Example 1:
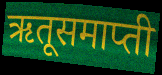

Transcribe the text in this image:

ऋतूसमाप्ती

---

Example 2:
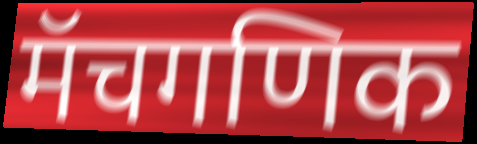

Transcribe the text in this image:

मॅचगणिक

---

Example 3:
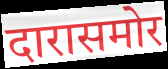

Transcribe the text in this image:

दारासमोर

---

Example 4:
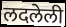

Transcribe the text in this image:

लदलेली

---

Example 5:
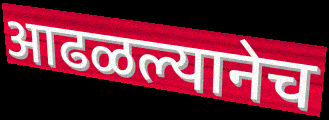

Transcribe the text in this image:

आढळल्यानेच